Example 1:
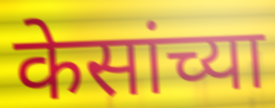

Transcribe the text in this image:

केसांच्या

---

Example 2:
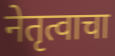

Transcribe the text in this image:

नेतृत्वाचा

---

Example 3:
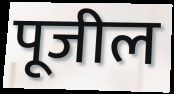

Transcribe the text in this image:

पूजील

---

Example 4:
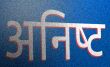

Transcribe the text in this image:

अनिष्‍ट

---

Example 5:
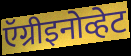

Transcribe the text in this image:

ऍग्रीइनोव्हेट